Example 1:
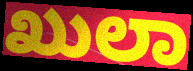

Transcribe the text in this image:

ಖುಲಾ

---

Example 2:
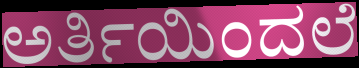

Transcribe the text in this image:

ಅರ್ತಿಯಿಂದಲೆ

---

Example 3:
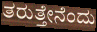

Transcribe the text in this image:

ತರುತ್ತೇನೆಂದು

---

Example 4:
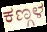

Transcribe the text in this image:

ಕಣ್ಗಳ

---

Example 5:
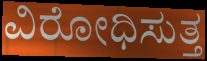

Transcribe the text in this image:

ವಿರೋಧಿಸುತ್ತ